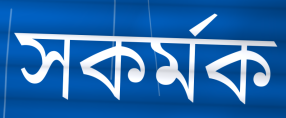
সকর্মক